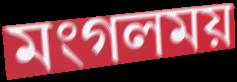
মংগলময়